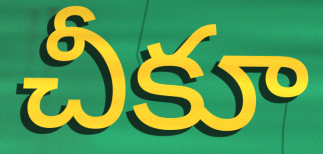
చీకూ